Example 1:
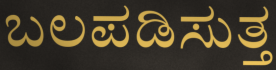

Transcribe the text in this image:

ಬಲಪಡಿಸುತ್ತ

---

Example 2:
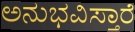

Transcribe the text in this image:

ಅನುಭವಿಸ್ತಾರೆ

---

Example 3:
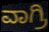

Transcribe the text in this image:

ವಾಗ್ರಿ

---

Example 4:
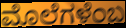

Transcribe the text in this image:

ಮೊಲೆಗಳೆಂಬ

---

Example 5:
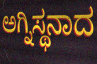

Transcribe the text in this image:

ಅಗ್ನಿಸ್ಥನಾದ